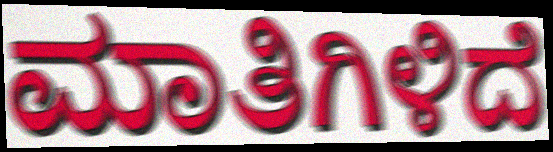
ಮಾತಿಗಿಳಿದೆ